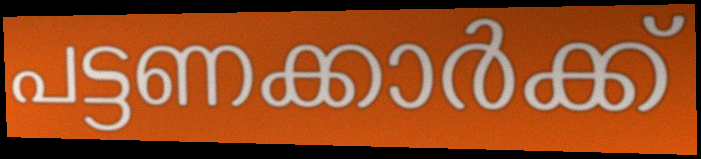
പട്ടണക്കാർക്ക്